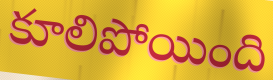
కూలిపోయింది